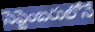
సెప్టెంబరులోనే